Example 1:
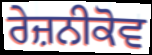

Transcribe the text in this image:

ਰੇਜ਼ਨੀਕੋਵ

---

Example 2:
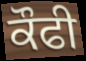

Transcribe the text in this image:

ਕੌਫੀ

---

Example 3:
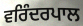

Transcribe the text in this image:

ਵਰਿੰਦਰਪਾਲ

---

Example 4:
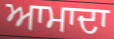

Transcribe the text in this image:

ਆਮਾਦਾ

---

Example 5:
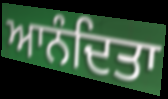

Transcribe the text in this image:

ਆਨੰਦਿਤਾ